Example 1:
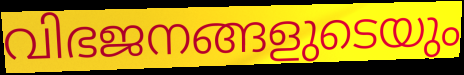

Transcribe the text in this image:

വിഭജനങ്ങളുടെയും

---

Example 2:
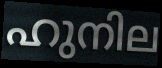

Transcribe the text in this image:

ഹുനില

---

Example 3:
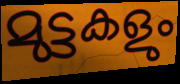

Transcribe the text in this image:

മുട്ടകളും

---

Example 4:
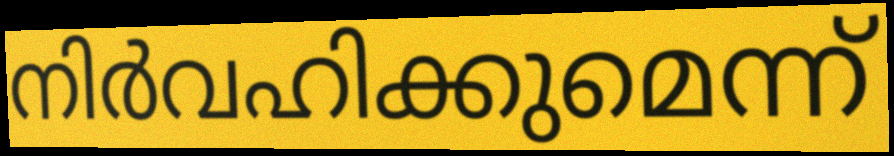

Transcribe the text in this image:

നിർവഹിക്കുമെന്ന്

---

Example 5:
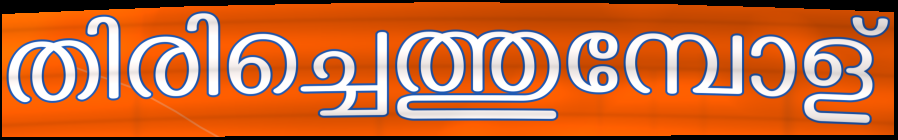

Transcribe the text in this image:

തിരിച്ചെത്തുമ്പോള്